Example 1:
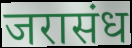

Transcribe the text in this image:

जरासंध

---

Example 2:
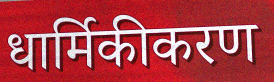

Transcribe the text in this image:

धार्मिकीकरण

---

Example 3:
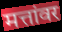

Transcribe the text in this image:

मत्तांवर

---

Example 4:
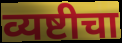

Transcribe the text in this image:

व्यष्टीचा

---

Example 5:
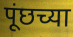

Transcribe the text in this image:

पूंछच्या